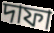
দাফা